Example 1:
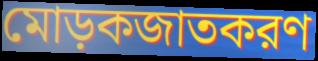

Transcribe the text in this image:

মোড়কজাতকরণ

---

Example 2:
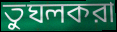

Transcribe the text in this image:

তুঘলকরা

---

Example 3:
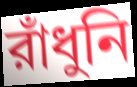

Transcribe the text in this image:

রাঁধুনি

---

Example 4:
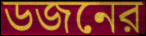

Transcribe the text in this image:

ডজনের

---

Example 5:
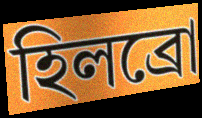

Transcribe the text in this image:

হিলব্রো